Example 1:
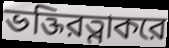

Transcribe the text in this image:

ভক্তিরত্নাকরে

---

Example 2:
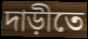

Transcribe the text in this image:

দাড়ীতে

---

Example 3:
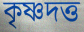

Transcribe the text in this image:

কৃষ্ণদত্ত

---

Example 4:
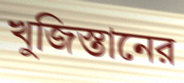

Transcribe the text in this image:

খুজিস্তানের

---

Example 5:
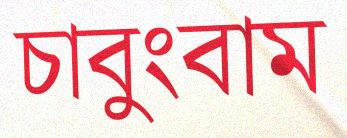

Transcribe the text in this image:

চাবুংবাম